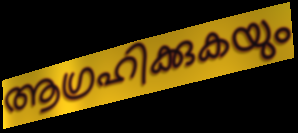
ആഗ്രഹിക്കുകയും